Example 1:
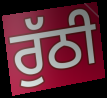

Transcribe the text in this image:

ਰੁੱਠੀ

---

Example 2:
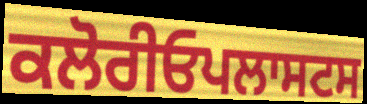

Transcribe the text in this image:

ਕਲੋਰੀਓਪਲਾਸਟਸ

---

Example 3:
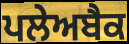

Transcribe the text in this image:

ਪਲੇਅਬੈਕ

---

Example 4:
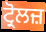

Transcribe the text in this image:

ਟ੍ਰੋਲਜ਼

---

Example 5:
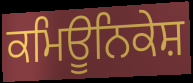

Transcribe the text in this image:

ਕਮਿਊਨਿਕੇਸ਼